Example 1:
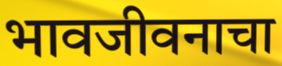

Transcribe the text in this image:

भावजीवनाचा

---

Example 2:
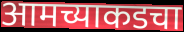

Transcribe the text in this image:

आमच्याकडचा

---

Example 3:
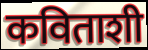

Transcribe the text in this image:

कविताशी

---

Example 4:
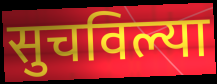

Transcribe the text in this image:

सुचविल्या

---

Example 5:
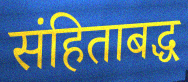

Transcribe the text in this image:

संहिताबद्ध